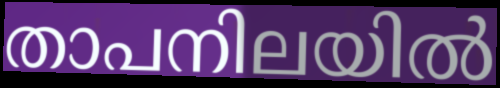
താപനിലയിൽ